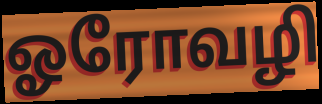
ஓரோவழி